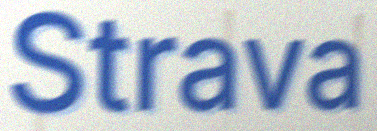
Strava